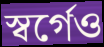
স্বর্গেও